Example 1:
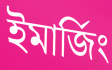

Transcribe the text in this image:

ইমার্জিং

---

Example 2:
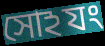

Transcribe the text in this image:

সোঽযং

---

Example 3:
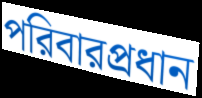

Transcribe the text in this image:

পরিবারপ্রধান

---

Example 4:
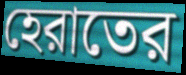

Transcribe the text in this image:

হেরাতের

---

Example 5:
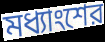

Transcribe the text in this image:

মধ্যাংশের